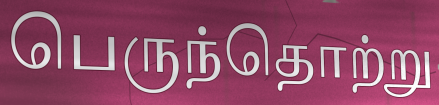
பெருந்தொற்று